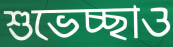
শুভেচ্ছাও